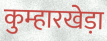
कुम्हारखेड़ा